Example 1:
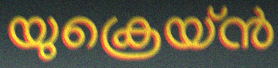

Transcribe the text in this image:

യുക്രെയ്ൻ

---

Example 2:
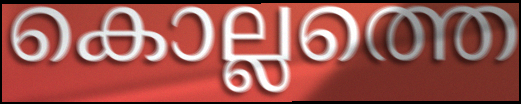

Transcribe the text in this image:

കൊല്ലത്തെ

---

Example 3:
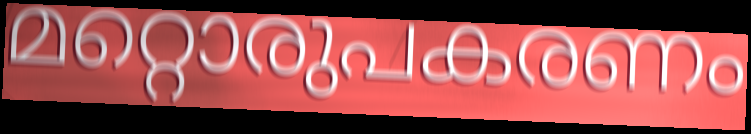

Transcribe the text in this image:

മറ്റൊരുപകരണം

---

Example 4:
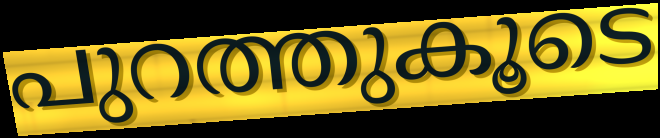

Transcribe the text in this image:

പുറത്തുകൂടെ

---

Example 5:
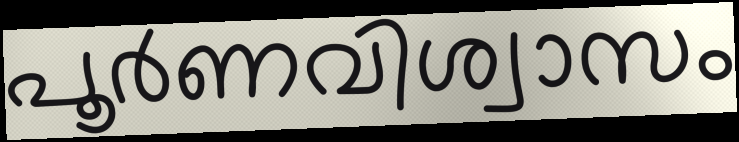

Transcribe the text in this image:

പൂർണവിശ്വാസം